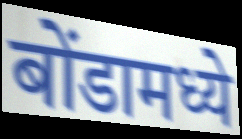
बोंडामध्ये